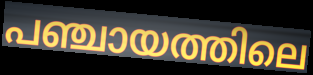
പഞ്ചായത്തിലെ